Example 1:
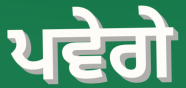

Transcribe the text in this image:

ਪਵੇਗੇ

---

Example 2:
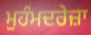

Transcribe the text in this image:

ਮੁਹੰਮਦਰੇਜ਼ਾ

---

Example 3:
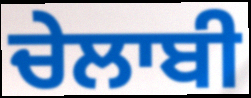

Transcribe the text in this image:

ਚੇਲਾਬੀ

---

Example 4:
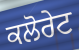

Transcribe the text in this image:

ਕਲੋਰੇਟ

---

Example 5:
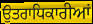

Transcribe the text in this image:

ਉਤਰਾਧਿਕਾਰੀਆਂ